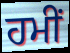
ਹਮੀਂ